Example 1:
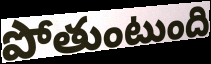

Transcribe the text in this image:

పోతుంటుంది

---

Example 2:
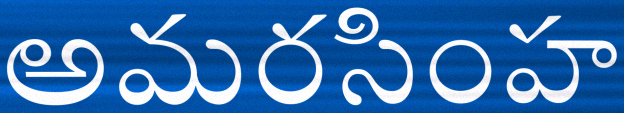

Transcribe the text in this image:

అమరసింహ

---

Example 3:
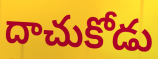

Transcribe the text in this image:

దాచుకోడు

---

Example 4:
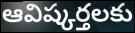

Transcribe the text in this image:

ఆవిష్కర్తలకు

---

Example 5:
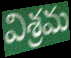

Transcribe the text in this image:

విశ్రమ